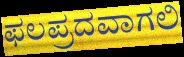
ಫಲಪ್ರದವಾಗಲಿ